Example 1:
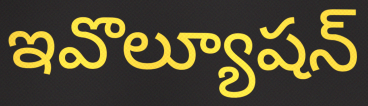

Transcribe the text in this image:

ఇవొల్యూషన్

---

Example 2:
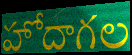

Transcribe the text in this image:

హోదాగల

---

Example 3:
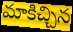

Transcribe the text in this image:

మాకిచ్చిన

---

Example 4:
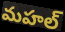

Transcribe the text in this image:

మహల్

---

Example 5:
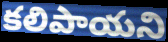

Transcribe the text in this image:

కలిపాయని